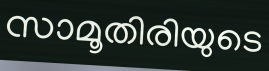
സാമൂതിരിയുടെ